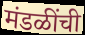
मंडळींची